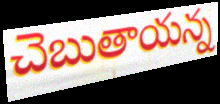
చెబుతాయన్న